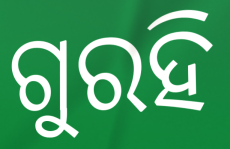
ଗୁରହି